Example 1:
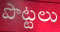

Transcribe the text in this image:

పొట్టలు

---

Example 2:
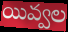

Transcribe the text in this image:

యివ్వల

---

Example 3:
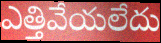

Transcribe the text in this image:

ఎత్తివేయలేదు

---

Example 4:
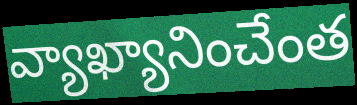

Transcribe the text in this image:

వ్యాఖ్యానించేంత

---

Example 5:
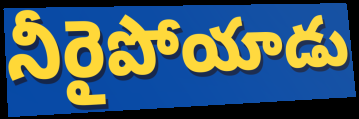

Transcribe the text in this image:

నీరైపోయాడు